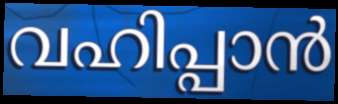
വഹിപ്പാൻ